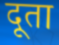
दूता